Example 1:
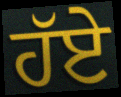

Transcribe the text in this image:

ਹੱਏ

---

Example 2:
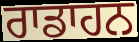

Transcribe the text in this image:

ਰਾਡਾਹਨ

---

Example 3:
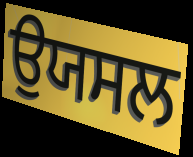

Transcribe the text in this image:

ਉਯਸਲ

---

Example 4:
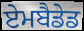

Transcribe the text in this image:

ਏਮਬੈਡੇਡ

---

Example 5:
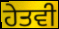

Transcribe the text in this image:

ਹੇਤਵੀ